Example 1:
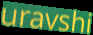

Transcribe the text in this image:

uravshi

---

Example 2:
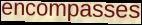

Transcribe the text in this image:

encompasses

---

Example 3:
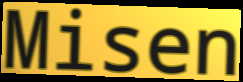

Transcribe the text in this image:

Misen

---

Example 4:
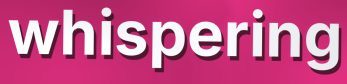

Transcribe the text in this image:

whispering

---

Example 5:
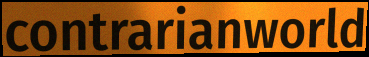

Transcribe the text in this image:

contrarianworld